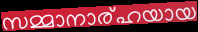
സമ്മാനാര്ഹയായ